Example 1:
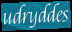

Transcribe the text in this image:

udryddes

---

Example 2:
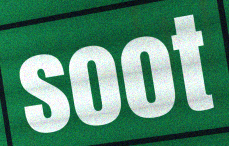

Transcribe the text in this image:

soot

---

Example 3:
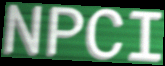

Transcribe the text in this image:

NPCI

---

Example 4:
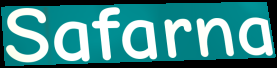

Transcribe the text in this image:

Safarna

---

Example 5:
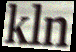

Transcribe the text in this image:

kln